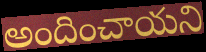
అందించాయని